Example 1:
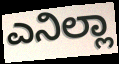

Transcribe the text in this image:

ಎನಿಲ್ಲಾ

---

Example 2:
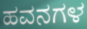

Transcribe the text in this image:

ಹವನಗಳ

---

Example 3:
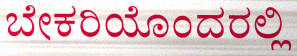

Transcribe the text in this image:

ಬೇಕರಿಯೊಂದರಲ್ಲಿ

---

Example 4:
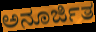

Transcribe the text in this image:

ಅನೂರ್ಜಿತ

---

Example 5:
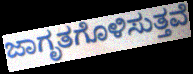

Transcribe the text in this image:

ಜಾಗೃತಗೊಳಿಸುತ್ತವೆ